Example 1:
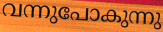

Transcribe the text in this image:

വന്നുപോകുന്നു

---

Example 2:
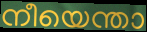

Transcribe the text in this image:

നീയെന്താ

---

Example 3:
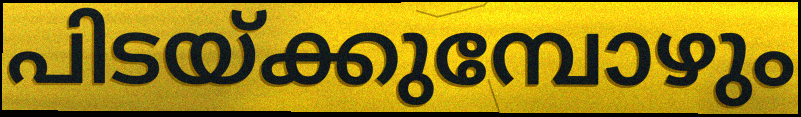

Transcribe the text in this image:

പിടയ്ക്കുമ്പോഴും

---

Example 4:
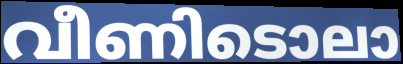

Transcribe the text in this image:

വീണിടൊലാ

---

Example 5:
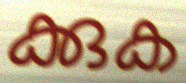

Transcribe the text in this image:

ക്കുക